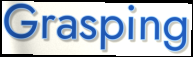
Grasping